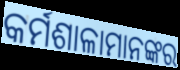
କର୍ମଶାଳାମାନଙ୍କର